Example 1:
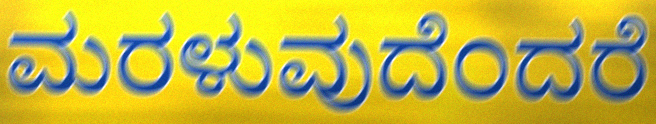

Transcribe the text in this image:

ಮರಳುವುದೆಂದರೆ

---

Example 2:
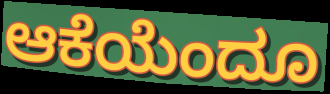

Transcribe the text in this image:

ಆಕೆಯೆಂದೂ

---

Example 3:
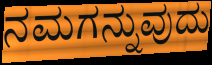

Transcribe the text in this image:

ನಮಗನ್ನುವುದು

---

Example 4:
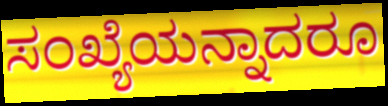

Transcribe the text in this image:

ಸಂಖ್ಯೆಯನ್ನಾದರೂ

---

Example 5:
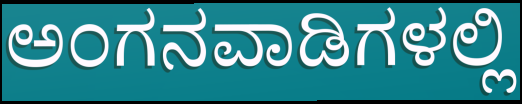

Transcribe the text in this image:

ಅಂಗನವಾಡಿಗಳಲ್ಲಿ